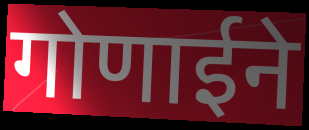
गोणाईने